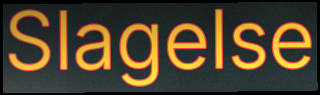
Slagelse